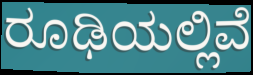
ರೂಢಿಯಲ್ಲಿವೆ